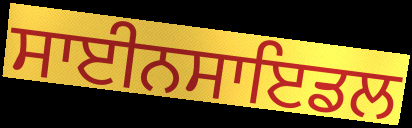
ਸਾਈਨਸਾਇਡਲ